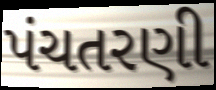
પંચતરણી